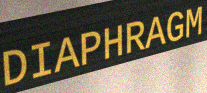
DIAPHRAGM